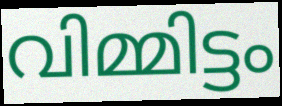
വിമ്മിട്ടം